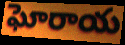
ఘోరాయ